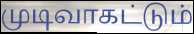
முடிவாகட்டும்